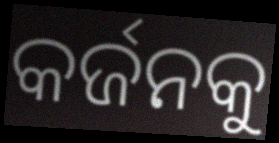
କର୍ଜନକୁ